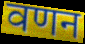
वणन